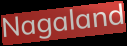
Nagaland